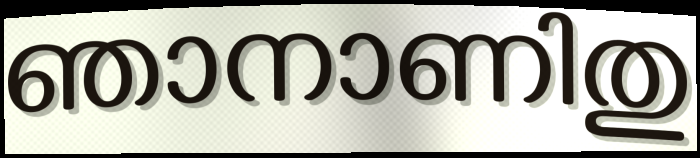
ഞാനാണിതു